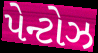
પેન્ટોઝ